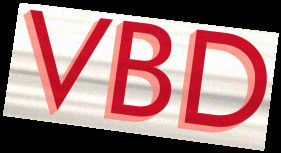
VBD